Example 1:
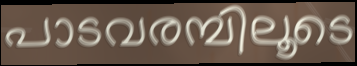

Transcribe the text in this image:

പാടവരമ്പിലൂടെ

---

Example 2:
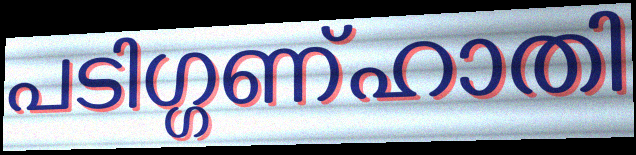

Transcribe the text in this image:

പടിഗ്ഗണ്ഹാതി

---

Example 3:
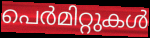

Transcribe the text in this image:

പെർമിറ്റുകൾ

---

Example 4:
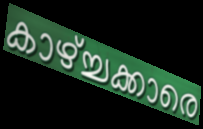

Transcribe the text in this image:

കാഴ്ച്ചക്കാരെ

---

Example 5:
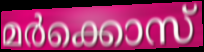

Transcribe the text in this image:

മർക്കൊസ്